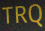
TRQ